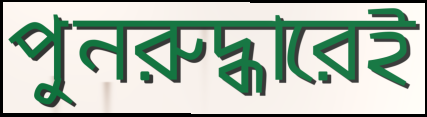
পুনরুদ্ধারেই